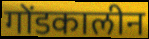
गोंडकालीन